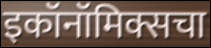
इकॉनॉमिक्सचा